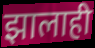
झालाही